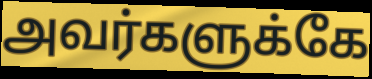
அவர்களுக்கே